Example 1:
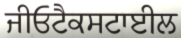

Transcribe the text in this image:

ਜੀਓਟੈਕਸਟਾਈਲ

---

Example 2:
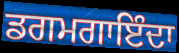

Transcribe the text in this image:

ਡਗਮਗਾਇੰਦਾ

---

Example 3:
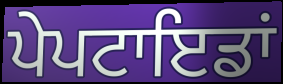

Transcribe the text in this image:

ਪੇਪਟਾਇਡਾਂ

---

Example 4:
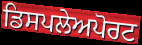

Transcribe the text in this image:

ਡਿਸਪਲੇਅਪੋਰਟ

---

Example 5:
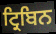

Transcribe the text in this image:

ਟ੍ਰਿਬਿਨ